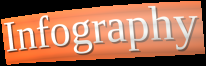
Infography